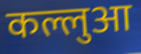
कल्लुआ